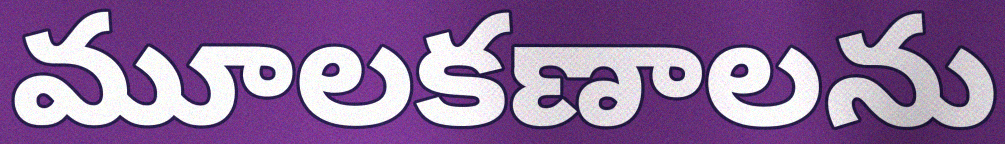
మూలకణాలను